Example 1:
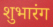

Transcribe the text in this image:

शुभारंग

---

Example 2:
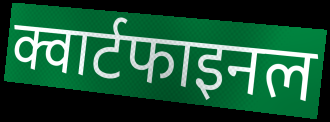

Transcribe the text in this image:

क्वार्टफाइनल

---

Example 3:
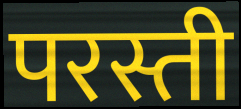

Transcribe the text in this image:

परस्ती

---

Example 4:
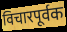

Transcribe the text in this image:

विचारपूर्वक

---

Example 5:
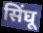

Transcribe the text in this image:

सिंघू